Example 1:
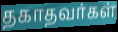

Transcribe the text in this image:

தகாதவர்கள்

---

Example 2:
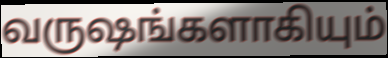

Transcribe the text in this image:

வருஷங்களாகியும்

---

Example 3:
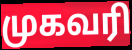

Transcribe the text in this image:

முகவரி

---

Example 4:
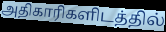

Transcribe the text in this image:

அதிகாரிகளிடத்தில்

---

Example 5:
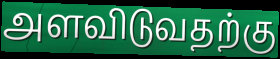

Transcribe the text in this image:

அளவிடுவதற்கு